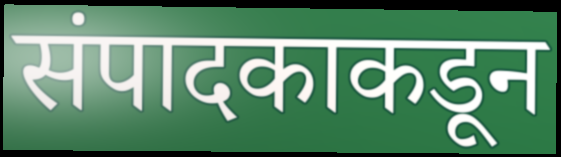
संपादकाकडून